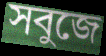
সবুজে